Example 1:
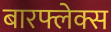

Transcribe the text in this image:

बारफ्लेक्स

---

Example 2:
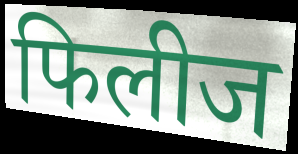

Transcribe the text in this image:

फिलीज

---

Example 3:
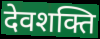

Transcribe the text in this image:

देवशक्ति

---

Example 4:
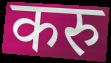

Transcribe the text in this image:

करु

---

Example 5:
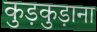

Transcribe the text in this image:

कुड़कुड़ाना